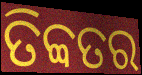
ତିବ୍ବତର